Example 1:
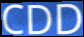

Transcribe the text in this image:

CDD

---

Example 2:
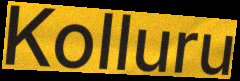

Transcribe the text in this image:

Kolluru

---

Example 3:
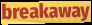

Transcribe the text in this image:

breakaway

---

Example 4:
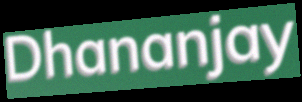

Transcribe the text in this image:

Dhananjay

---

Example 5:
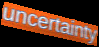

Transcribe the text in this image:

uncertainty